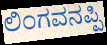
ಲಿಂಗವನಪ್ಪಿ